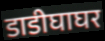
डाडीघाघर